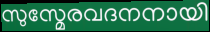
സുസ്മേരവദനനായി